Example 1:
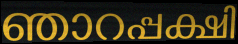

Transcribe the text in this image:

ഞാറപ്പക്ഷി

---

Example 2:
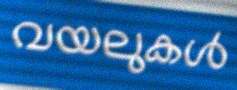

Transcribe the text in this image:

വയലുകൾ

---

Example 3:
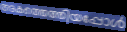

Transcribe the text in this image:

അകത്തെത്തിയപ്പോൾ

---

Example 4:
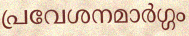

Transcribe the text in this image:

പ്രവേശനമാർഗ്ഗം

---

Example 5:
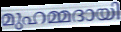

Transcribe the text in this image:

മുഹമ്മദായി